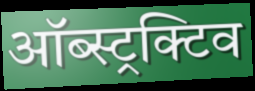
ऑब्स्ट्रक्टिव